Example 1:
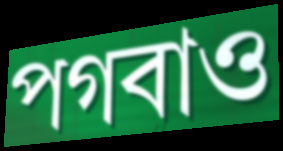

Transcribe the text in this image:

পগবাও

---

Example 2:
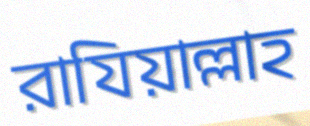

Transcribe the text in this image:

রাযিয়াল্লাহ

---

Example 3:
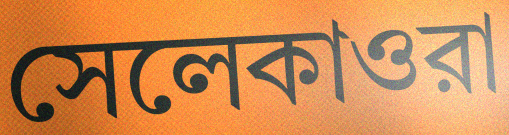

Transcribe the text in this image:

সেলেকাওরা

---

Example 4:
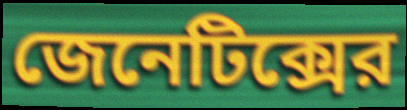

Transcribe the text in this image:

জেনেটিক্সের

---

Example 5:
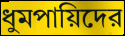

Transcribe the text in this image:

ধুমপায়িদের